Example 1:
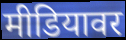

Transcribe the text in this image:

मीडियावर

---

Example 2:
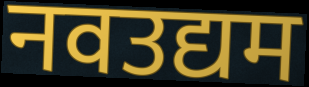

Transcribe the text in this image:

नवउद्यम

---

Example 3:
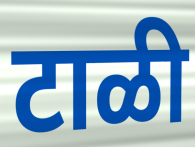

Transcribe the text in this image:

टाळी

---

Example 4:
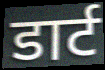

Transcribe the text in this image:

डार्ट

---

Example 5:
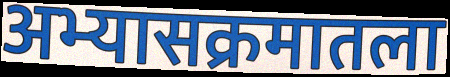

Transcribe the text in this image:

अभ्यासक्रमातला